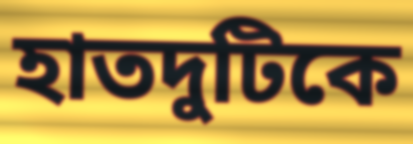
হাতদুটিকে